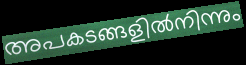
അപകടങ്ങളിൽനിന്നും